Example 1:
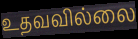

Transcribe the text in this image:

உதவவில்லை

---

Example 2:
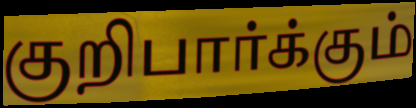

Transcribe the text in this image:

குறிபார்க்கும்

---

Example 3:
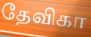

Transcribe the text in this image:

தேவிகா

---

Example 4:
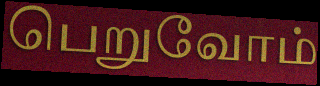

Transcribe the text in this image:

பெறுவோம்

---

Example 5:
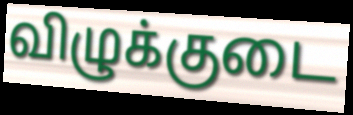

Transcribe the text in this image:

விழுக்குடை